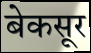
बेकसूर